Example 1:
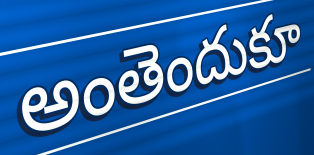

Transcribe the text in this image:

అంతెందుకూ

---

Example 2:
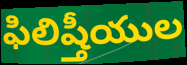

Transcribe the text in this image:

ఫిలిష్తీయుల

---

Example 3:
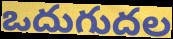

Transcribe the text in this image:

ఒదుగుదల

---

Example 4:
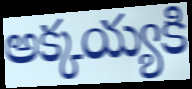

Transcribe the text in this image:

అక్కయ్యకి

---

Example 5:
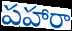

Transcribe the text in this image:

పహారా